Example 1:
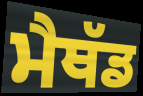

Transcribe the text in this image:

ਮੈਥੱਡ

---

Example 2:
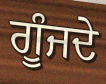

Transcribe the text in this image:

ਗੂੰਜਦੇ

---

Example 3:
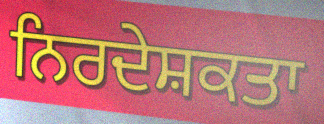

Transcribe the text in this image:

ਨਿਰਦੇਸ਼ਕਤਾ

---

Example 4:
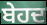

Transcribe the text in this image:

ਬੇਹਦ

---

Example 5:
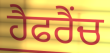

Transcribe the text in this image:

ਹੈਫਰੈਂਚ